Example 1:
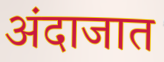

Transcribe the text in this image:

अंदाजात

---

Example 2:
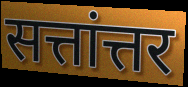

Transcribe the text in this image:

सत्तांत्तर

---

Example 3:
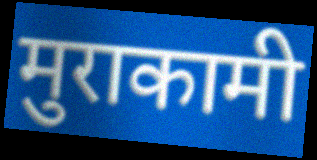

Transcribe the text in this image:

मुराकामी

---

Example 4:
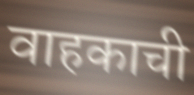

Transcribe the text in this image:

वाहकाची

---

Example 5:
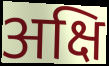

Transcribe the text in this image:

अक्षि